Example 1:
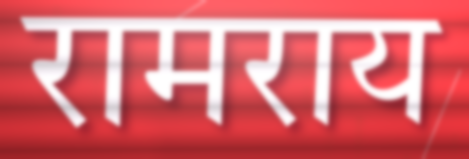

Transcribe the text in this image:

रामराय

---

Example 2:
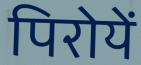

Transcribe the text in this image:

पिरोयें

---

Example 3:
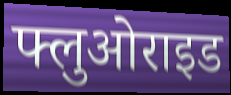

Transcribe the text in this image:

फ्लुओराइड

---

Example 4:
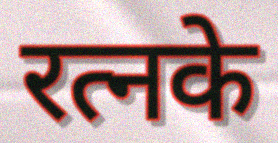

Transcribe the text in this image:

रत्नके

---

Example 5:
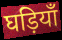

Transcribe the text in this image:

घड़ियाँ